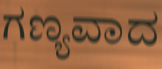
ಗಣ್ಯವಾದ